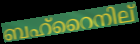
ബഹ്റൈനില്